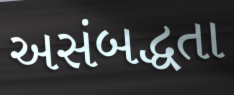
અસંબદ્ધતા